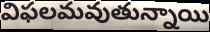
విఫలమవుతున్నాయి